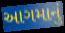
આગમાનું